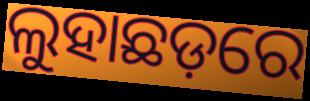
ଲୁହାଛଡ଼ରେ